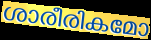
ശാരീരികമോ